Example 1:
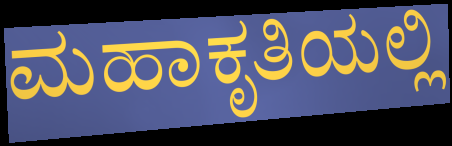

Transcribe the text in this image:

ಮಹಾಕೃತಿಯಲ್ಲಿ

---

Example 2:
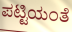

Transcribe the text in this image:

ಪಟ್ಟಿಯಂತೆ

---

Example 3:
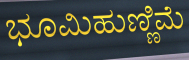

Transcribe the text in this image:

ಭೂಮಿಹುಣ್ಣಿಮೆ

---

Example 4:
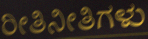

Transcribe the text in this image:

ರೀತಿನೀತಿಗಳು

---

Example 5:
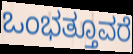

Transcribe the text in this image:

ಒಂಭತ್ತೂವರೆ